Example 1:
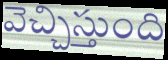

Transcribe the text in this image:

వెచ్చిస్తుంది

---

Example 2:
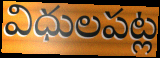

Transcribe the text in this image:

విధులపట్ల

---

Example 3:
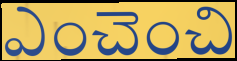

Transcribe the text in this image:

ఎంచెంచి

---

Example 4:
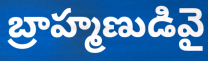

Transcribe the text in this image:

బ్రాహ్మణుడివై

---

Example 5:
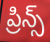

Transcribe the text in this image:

ప్రిన్స్